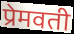
प्रेमवती